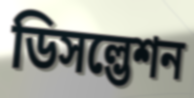
ডিসল্ভেশন